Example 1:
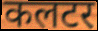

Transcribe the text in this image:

कलटर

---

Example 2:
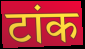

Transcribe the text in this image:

टांक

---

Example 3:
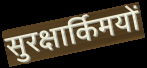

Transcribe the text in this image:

सुरक्षार्किमयों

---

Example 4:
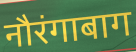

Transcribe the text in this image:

नौरंगाबाग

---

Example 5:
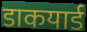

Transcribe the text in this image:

डाकयार्ड